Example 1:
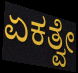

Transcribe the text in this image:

ಏಕತ್ವೇ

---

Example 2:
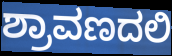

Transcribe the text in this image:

ಶ್ರಾವಣದಲಿ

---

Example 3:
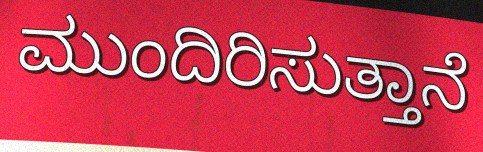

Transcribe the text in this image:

ಮುಂದಿರಿಸುತ್ತಾನೆ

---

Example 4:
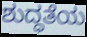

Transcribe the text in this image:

ಶುದ್ಧತೆಯ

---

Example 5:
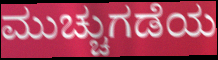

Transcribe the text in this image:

ಮುಚ್ಚುಗಡೆಯ